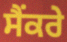
ਸੈਂਕਰੇ